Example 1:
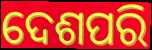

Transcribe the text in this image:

ଦେଶପରି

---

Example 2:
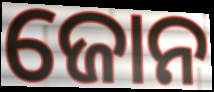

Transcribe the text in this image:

ଜୋନ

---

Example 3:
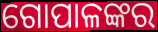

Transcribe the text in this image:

ଗୋପାଳଙ୍କର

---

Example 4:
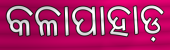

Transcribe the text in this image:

କଳାପାହାଡ଼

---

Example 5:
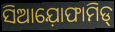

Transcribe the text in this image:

ସିଆଯ଼ୋଫାମିଡ୍